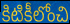
కిటికీలోంచి